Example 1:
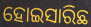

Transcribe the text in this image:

ହୋଇସାରିଛ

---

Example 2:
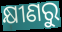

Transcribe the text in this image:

କ୍ଷୀଣରୁ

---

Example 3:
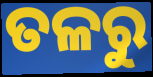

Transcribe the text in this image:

ତଳରୁ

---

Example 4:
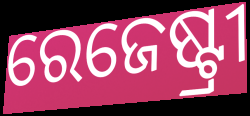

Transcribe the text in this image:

ରେଜେଷ୍ଟ୍ରୀ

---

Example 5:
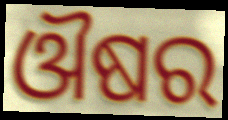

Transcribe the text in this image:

ଔଷର